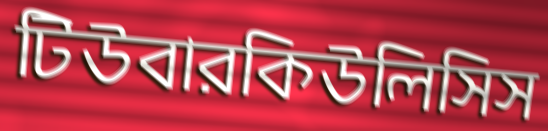
টিউবারকিউলিসিস